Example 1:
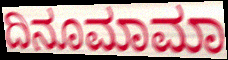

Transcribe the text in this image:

ದಿನೂಮಾಮಾ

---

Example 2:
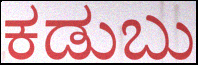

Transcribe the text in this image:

ಕಡುಬು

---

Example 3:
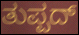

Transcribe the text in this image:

ತುಪ್ಪದ್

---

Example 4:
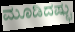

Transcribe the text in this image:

ಮೂಡಿದಷ್ಟು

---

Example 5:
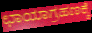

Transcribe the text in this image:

ಛಾಯಾಗ್ರಹಣಕ್ಕೆ